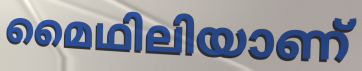
മൈഥിലിയാണ്